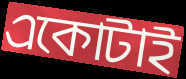
একোটাই